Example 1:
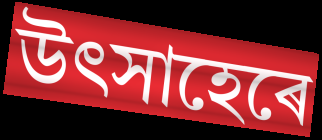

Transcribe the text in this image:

উৎসাহেৰে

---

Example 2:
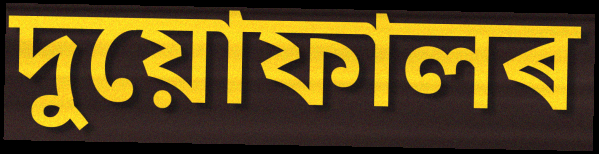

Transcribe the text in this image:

দুয়োফালৰ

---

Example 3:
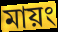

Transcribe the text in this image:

মায়ং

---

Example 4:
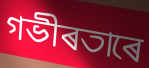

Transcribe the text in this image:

গভীৰতাৰে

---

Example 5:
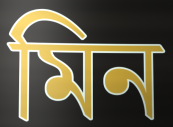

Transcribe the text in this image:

মিন